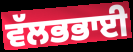
ਵੱਲਭਭਾਈ